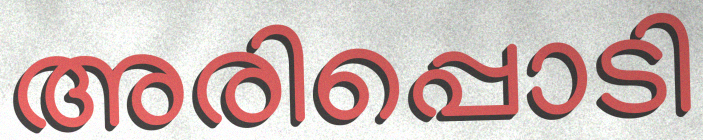
അരിപ്പൊടി